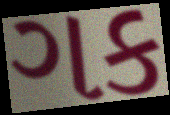
ગક